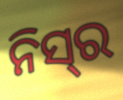
ନିସ୍‌ର